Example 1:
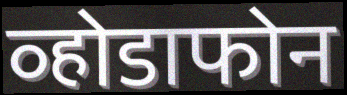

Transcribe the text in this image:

व्होडाफोन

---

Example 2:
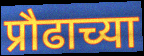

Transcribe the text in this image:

प्रौढाच्या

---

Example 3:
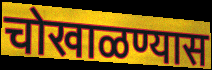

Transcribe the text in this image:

चोखाळण्यास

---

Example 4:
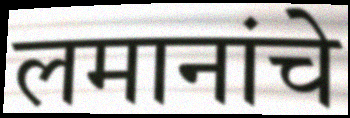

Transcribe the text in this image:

लमानांचे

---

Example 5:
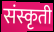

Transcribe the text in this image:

संस्कृती